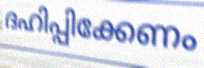
ദഹിപ്പിക്കേണം